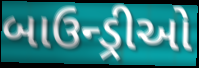
બાઉન્ડ્રીઓ